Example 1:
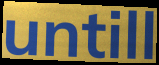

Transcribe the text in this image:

untill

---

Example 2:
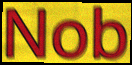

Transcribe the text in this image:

Nob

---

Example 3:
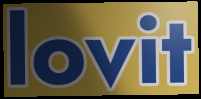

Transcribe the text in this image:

lovit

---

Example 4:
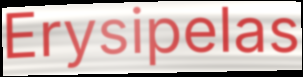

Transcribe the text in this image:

Erysipelas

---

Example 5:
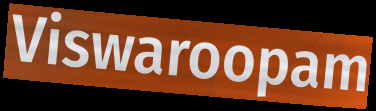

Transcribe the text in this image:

Viswaroopam